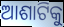
ଆଶାଟିକୁ